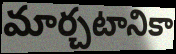
మార్చటానికా